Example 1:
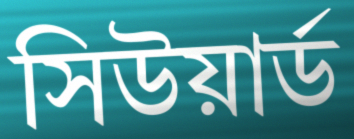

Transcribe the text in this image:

সিউয়ার্ড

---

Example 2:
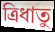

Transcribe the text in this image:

ত্রিধাতু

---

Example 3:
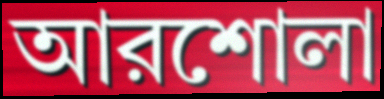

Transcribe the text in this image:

আরশোলা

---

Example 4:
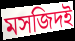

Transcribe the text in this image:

মসজিদই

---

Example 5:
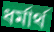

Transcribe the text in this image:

ধর্মার্থ